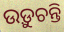
ଉଡ଼ୁଚନ୍ତି